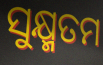
ସୁକ୍ଷ୍ମତମ